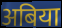
अबिया